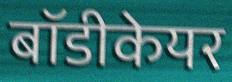
बॉडीकेयर